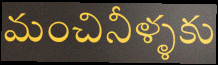
మంచినీళ్ళకు